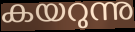
കയറുന്നു